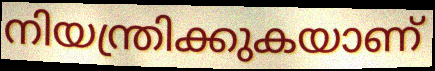
നിയന്ത്രിക്കുകയാണ്